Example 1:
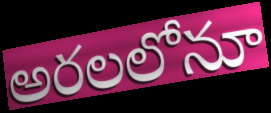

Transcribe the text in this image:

అరలలోనూ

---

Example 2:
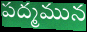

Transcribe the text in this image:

పద్మమున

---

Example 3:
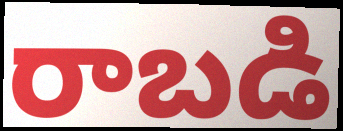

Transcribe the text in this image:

రాబడి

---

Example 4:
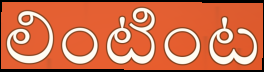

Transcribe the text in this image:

లింటింట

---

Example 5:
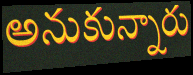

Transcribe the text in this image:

అనుకున్నారు